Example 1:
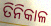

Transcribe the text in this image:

ତିନିକାଳ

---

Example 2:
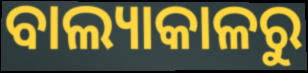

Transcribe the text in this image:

ବାଲ୍ୟାକାଳରୁ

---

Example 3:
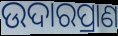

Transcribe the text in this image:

ଉଦାରପ୍ରାଣ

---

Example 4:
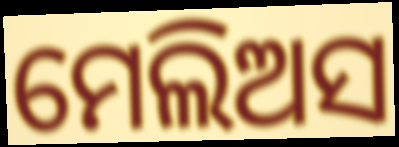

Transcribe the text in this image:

ମେଲିଅସ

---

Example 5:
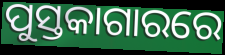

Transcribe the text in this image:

ପୁସ୍ତକାଗାରରେ